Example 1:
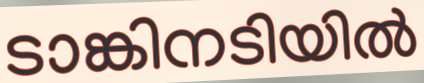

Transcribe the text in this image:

ടാങ്കിനടിയിൽ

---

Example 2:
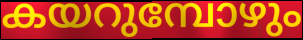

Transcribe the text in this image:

കയറുമ്പോഴും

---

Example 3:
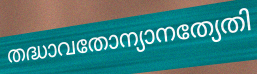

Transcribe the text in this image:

തദ്ധാവതോന്യാനത്യേതി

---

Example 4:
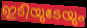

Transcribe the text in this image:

ഇടിയുടേയും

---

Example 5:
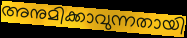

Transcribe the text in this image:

അനുമിക്കാവുന്നതായി